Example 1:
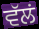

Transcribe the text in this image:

ਵੱਲਂ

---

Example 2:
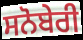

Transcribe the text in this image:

ਸਨੋਬੇਰੀ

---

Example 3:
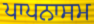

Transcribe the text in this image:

ਪਾਪਨਾਸਮ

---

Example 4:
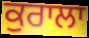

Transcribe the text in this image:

ਕੁਰਾਲਾ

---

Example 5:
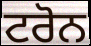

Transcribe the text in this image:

ਟਰੋਨ